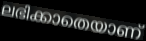
ലഭിക്കാതെയാണ്